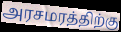
அரசமரத்திற்கு